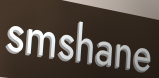
smshane